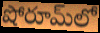
షోరూమ్‌లో